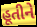
હૂતીને